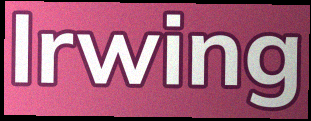
Irwing